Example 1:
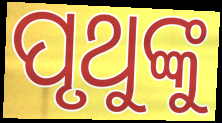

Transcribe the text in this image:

ପୃଥୁଙ୍କୁ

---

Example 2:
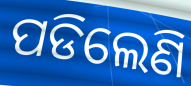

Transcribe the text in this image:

ପଡିଲେଣି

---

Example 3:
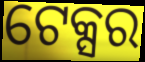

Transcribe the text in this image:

ଟେକ୍ସର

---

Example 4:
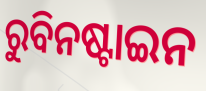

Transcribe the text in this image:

ରୁବିନଷ୍ଟାଇନ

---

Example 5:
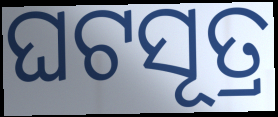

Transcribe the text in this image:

ଘଟସୂତ୍ର